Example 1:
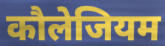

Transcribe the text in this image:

कौलेजियम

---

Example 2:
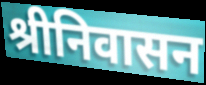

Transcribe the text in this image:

श्रीनिवासन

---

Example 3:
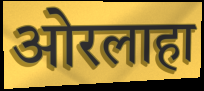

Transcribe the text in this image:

ओरलाहा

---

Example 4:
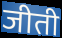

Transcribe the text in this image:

जीती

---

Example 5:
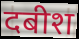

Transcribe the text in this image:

दबीश